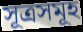
সূত্ৰসমূহ